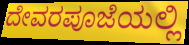
ದೇವರಪೂಜೆಯಲ್ಲಿ